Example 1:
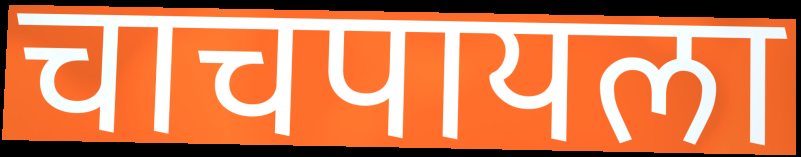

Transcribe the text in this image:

चाचपायला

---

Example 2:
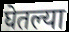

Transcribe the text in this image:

घेतल्या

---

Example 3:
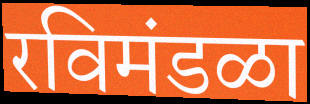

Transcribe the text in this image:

रविमंडळा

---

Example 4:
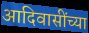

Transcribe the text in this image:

आदिवासींच्या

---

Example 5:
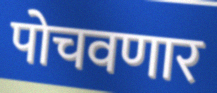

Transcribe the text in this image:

पोचवणार